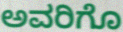
ಅವರಿಗೊ